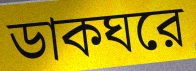
ডাকঘরে